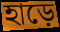
হাড়ে